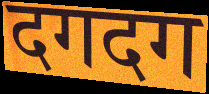
दगदग